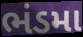
ભંડમા